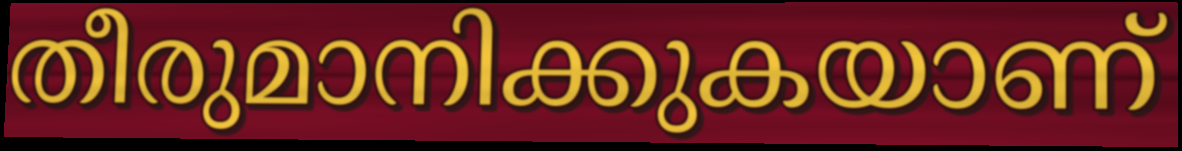
തീരുമാനിക്കുകയാണ്